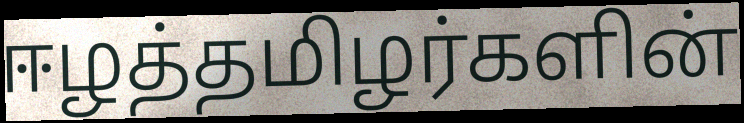
ஈழத்தமிழர்களின்